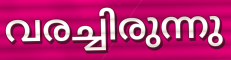
വരച്ചിരുന്നു